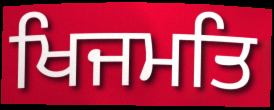
ਖਿਜਮਤਿ